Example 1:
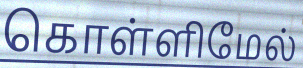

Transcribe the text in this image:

கொள்ளிமேல்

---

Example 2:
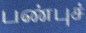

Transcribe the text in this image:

பண்புச்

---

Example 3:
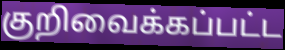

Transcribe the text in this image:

குறிவைக்கப்பட்ட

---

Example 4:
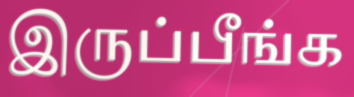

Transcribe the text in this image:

இருப்பீங்க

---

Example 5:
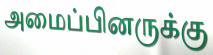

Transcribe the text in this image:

அமைப்பினருக்கு